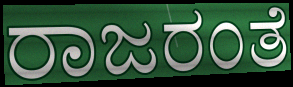
ರಾಜರಂತೆ